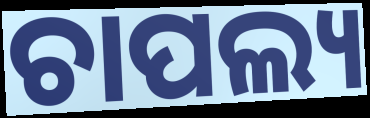
ଚାପଲ୍ୟ